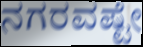
ನಗರವಷ್ಟೇ